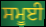
ਸਮੂਈ